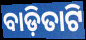
ବାଡ଼ିତାଟି